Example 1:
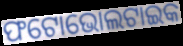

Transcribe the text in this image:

ଫଟୋଭୋଲଟାଇକ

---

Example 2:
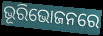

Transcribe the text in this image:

ଭୂରିଭୋଜନରେ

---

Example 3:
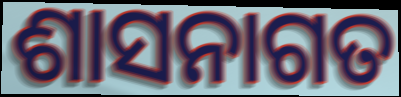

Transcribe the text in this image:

ଶାସନାଗତ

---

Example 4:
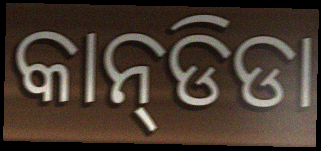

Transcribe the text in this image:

କାନ୍‌ଡିଡା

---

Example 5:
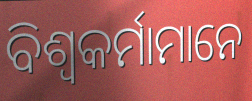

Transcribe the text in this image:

ବିଶ୍ଵକର୍ମାମାନେ